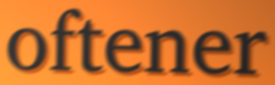
oftener